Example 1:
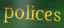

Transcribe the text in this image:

polices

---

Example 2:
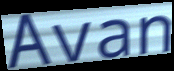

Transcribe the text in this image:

Avan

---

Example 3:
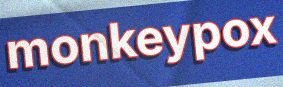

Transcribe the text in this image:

monkeypox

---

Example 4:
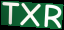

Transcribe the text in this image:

TXR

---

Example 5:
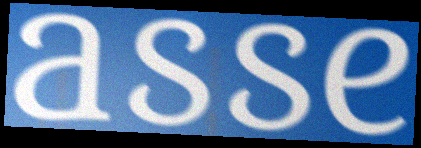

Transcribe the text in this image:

asse